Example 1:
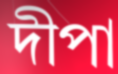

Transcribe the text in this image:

দীপা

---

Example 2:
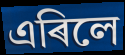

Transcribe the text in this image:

এৰিলে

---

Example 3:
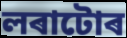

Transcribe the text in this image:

লৰাটোৰ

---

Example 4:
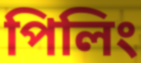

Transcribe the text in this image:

পিলিং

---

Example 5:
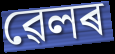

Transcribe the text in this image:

ৱেলৰ